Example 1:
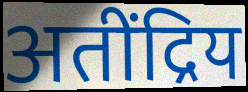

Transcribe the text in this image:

अतींद्रिय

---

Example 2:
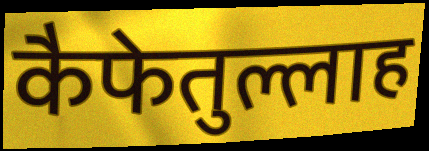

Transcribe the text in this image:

कैफेतुल्लाह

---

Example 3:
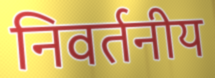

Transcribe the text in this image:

निवर्तनीय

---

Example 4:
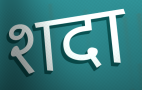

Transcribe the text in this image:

शदा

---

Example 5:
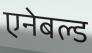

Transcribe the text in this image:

एनेबल्ड